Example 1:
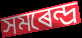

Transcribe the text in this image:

সমৰেন্দ্ৰ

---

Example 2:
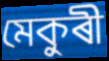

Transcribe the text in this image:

মেকুৰী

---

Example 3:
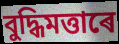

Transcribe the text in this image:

বুদ্ধিমত্তাৰে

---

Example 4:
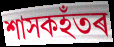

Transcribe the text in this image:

শাসকহঁতৰ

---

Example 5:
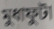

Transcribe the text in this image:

মুধাফুটা